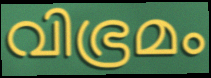
വിഭ്രമം